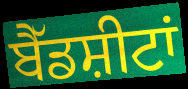
ਬੈੱਡਸ਼ੀਟਾਂ